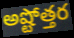
అష్టోత్తర